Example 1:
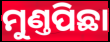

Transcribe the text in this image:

ମୁଣ୍ତପିଛା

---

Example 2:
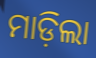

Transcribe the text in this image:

ମାଡ଼ିଲା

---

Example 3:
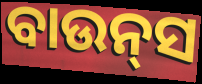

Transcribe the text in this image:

ବାଉନ୍‌ସ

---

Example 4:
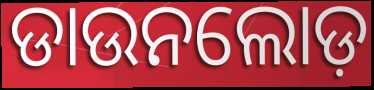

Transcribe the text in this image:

ଡାଉନଲୋଡ଼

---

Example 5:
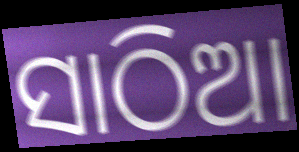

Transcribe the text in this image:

ସାଠିଆ